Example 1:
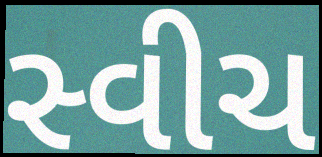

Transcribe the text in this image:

સ્વીચ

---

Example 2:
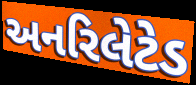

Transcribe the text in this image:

અનરિલેટેડ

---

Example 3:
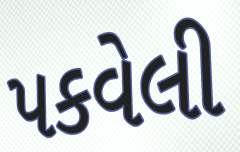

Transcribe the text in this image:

પકવેલી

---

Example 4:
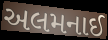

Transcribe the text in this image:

અલમનાઈ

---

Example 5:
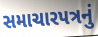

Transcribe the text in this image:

સમાચારપત્રનું